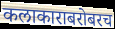
कलाकाराबरोबरच